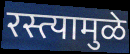
रस्त्यामुळे